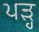
ਪੜ੍ਹ